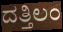
ದತ್ತಿಲಂ